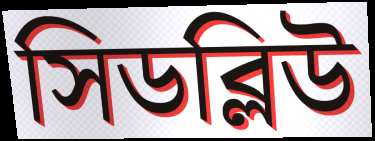
সিডব্লিউ